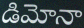
డిమోనా